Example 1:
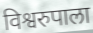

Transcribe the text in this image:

विश्वरुपाला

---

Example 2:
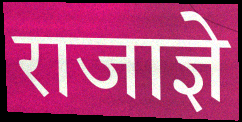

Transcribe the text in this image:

राजाज्ञे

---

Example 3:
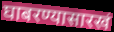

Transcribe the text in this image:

घाबरण्यासारखं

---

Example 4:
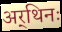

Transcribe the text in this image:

अर्थिनः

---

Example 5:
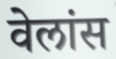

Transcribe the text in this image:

वेलांस